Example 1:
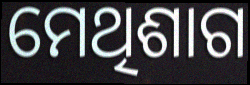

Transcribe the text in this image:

ମେଥିଶାଗ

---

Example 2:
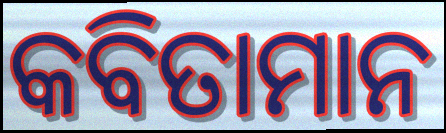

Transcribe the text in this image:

କବିତାମାନ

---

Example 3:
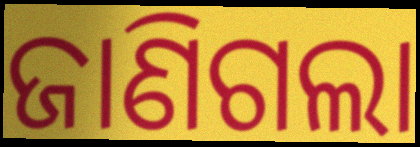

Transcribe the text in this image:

ଜାଣିଗଲା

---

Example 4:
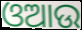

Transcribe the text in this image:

ଓଆଉ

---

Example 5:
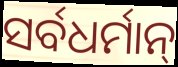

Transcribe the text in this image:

ସର୍ବଧର୍ମାନ୍